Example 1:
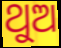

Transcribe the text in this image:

ଥୁଅ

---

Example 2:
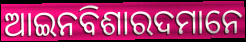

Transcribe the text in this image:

ଆଇନବିଶାରଦମାନେ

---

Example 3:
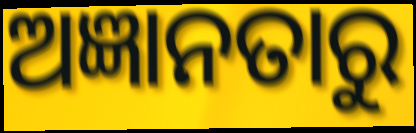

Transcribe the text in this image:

ଅଜ୍ଞାନତାରୁ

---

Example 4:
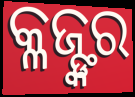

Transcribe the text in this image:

କ୍ଳଜ୍ଙ୍କର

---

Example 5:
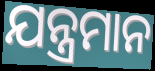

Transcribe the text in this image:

ଯନ୍ତ୍ରମାନ